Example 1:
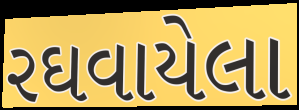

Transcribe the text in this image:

રઘવાયેલા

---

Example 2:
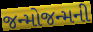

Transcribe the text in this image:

જન્મોજન્મની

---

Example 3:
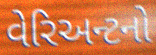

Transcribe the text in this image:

વેરિઅન્ટનો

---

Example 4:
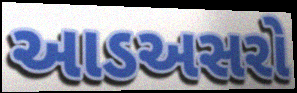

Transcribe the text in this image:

આડઅસરો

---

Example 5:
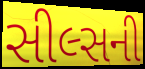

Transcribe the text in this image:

સીલ્સની